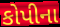
કોપીના